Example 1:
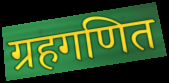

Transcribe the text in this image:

ग्रहगणित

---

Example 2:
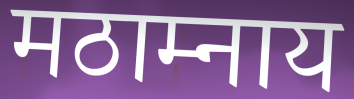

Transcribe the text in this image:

मठाम्नाय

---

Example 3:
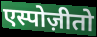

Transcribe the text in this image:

एस्पोज़ीतो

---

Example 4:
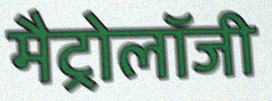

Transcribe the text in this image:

मैट्रोलॉजी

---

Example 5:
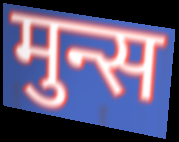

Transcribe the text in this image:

मुन्स